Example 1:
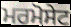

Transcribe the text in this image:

ਮਰਮੋਸੇਟ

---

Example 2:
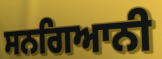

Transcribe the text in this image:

ਸਨਗਿਆਨੀ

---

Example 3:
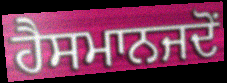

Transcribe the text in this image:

ਹੈਸਮਾਨਜਦੋਂ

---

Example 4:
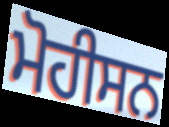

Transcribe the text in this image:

ਮੋਹੀਸਨ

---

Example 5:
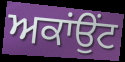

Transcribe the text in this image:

ਅਕਾਂਉਂਟ